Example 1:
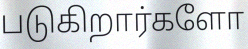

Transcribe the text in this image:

படுகிறார்களோ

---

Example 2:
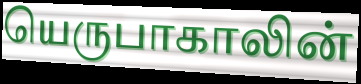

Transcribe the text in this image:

யெருபாகாலின்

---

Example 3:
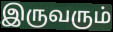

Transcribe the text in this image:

இருவரும்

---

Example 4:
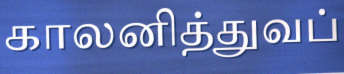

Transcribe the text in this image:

காலனித்துவப்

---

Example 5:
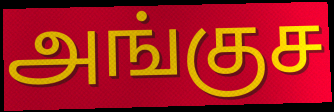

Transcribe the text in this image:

அங்குச